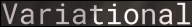
Variational